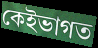
কেইভাগত